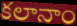
కలానాం